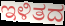
ಇಳಿತದ